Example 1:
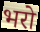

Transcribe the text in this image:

भरो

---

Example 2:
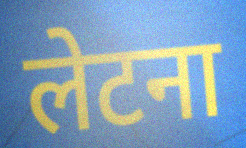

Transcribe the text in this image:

लेटना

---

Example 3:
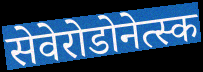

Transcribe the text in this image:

सेवेरोडोनेत्स्क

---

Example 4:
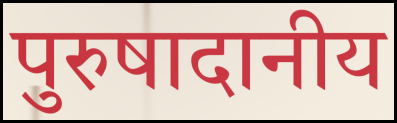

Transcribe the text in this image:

पुरुषादानीय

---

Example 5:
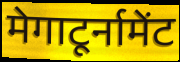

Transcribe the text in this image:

मेगाटूर्नामेंट